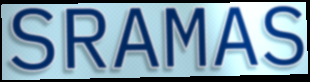
SRAMAS